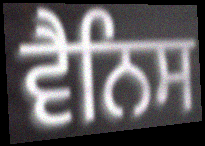
ਵੈਨਿਸ